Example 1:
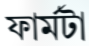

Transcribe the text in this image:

ফার্মটা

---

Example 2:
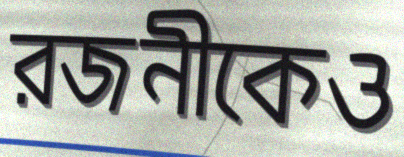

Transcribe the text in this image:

রজনীকেও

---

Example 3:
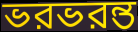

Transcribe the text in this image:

ভরভরন্ত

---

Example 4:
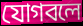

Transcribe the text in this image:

যোগবলে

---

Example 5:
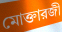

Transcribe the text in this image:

মোক্তারজী